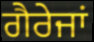
ਗੈਰੇਜਾਂ